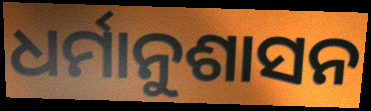
ଧର୍ମାନୁଶାସନ